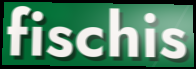
fischis